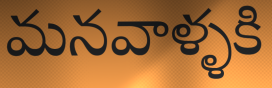
మనవాళ్ళకి